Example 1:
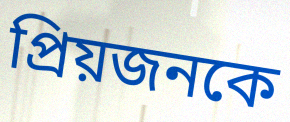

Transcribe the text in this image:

প্রিয়জনকে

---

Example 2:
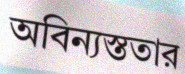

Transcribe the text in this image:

অবিন্যস্ততার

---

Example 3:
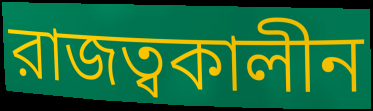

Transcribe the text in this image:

রাজত্বকালীন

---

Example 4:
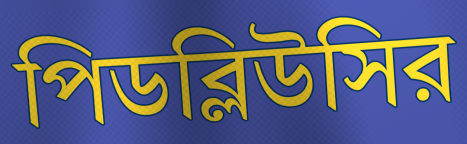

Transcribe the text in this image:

পিডব্লিউসির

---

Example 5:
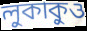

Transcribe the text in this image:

লুকাকুও